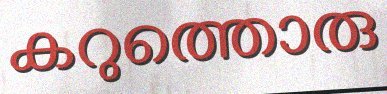
കറുത്തൊരു